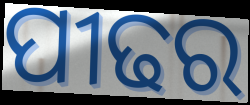
ପୀଢର